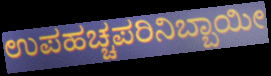
ಉಪಹಚ್ಚಪರಿನಿಬ್ಬಾಯೀ